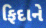
ફિદાને